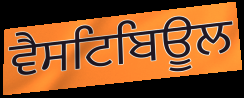
ਵੈਸਟਿਬਿਊਲ